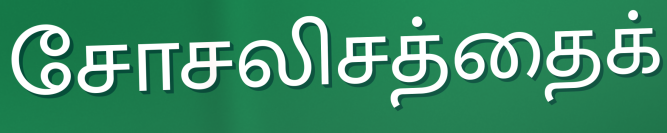
சோசலிசத்தைக்